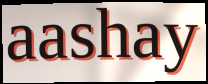
aashay